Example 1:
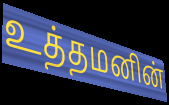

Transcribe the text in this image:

உத்தமனின்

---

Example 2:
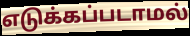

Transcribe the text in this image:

எடுக்கப்படாமல்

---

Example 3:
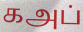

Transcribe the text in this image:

கஅப்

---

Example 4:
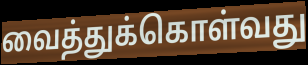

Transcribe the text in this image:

வைத்துக்கொள்வது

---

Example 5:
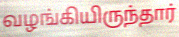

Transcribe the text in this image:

வழங்கியிருந்தார்